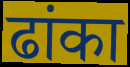
ढांका